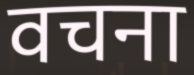
वचना